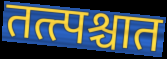
तत्त्पश्चात